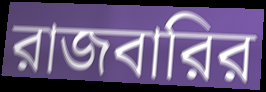
রাজবারির